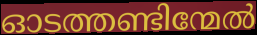
ഓടത്തണ്ടിന്മേൽ